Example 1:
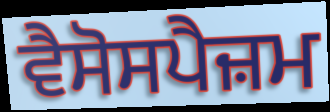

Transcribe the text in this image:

ਵੈਸੋਸਪੈਜ਼ਮ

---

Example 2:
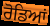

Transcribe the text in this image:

ਰੋਡਿਆਂ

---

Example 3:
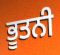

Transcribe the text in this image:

ਭੂਤਨੀ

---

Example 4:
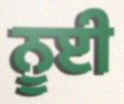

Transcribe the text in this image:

ਨੂਈ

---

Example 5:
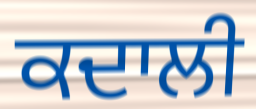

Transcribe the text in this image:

ਕਦਾਲੀ